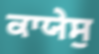
ਕਾਯੇਸੁ